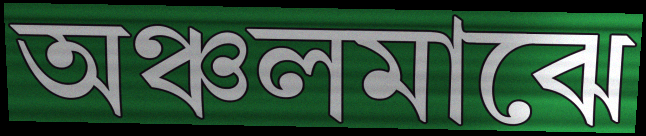
অঞ্চলমাঝে